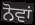
ਨੋਵਾਂ